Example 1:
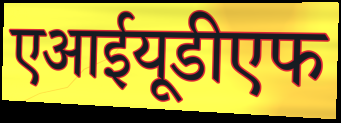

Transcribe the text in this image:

एआईयूडीएफ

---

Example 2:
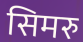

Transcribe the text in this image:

सिमरु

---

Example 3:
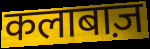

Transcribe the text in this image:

कलाबाज़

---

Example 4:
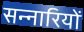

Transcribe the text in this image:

सन्नारियों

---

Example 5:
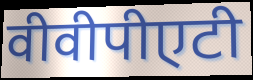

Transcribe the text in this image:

वीवीपीएटी